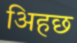
अिहछ